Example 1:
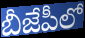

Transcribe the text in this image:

బీజేపీలో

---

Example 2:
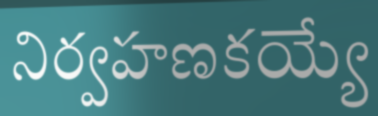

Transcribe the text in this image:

నిర్వహణకయ్యే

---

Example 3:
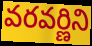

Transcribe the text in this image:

వరవర్ణిని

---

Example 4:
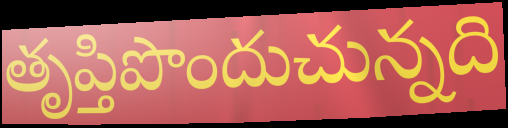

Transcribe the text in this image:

తృప్తిపొందుచున్నది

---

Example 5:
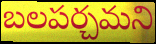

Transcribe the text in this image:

బలపర్చమని